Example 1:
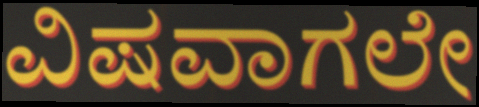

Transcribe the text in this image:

ವಿಷವಾಗಲೇ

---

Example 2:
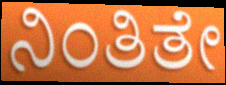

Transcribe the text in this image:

ನಿಂತಿತೇ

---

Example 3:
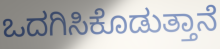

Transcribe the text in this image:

ಒದಗಿಸಿಕೊಡುತ್ತಾನೆ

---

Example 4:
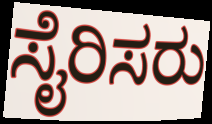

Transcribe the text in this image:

ಸೈರಿಸರು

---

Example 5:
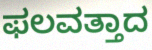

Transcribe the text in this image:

ಫಲವತ್ತಾದ